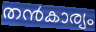
തൻകാര്യം